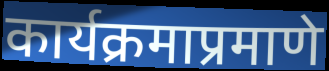
कार्यक्रमाप्रमाणे